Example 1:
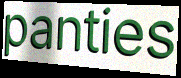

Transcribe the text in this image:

panties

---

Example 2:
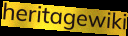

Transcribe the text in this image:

heritagewiki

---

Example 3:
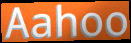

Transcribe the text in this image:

Aahoo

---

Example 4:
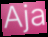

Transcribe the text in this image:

Aja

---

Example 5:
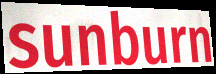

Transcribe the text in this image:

sunburn